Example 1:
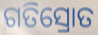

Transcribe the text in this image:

ଗତିସ୍ରୋତ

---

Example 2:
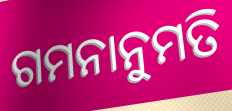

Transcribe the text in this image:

ଗମନାନୁମତି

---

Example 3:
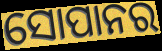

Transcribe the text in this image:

ସୋପାନର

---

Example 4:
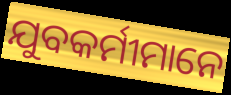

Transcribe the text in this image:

ଯୁବକର୍ମୀମାନେ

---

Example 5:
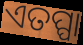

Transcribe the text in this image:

ଏତପ୍ପା